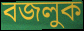
বজলুক